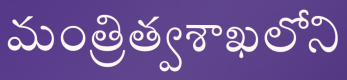
మంత్రిత్వశాఖలోని